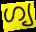
ഗ്യ